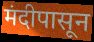
मंदीपासून